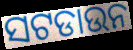
ସଟଡାଉନ